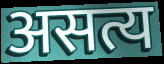
असत्य